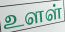
உளள்